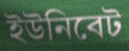
ইউনিবেট